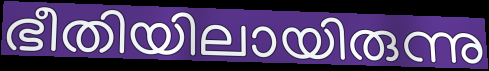
ഭീതിയിലായിരുന്നു